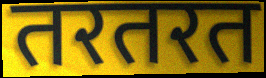
तरतरत